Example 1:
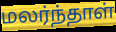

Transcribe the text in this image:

மலர்ந்தாள்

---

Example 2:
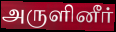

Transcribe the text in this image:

அருளினீர்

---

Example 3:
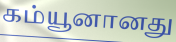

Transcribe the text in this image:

கம்யூனானது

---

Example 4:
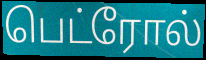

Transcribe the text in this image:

பெட்ரோல்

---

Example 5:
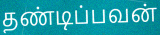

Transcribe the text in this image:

தண்டிப்பவன்